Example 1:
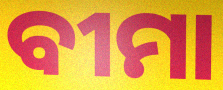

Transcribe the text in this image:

ବୀମା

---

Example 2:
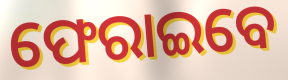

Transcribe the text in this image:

ଫେରାଇବେ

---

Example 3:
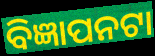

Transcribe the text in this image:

ବିଜ୍ଞାପନଟା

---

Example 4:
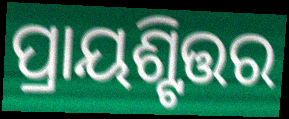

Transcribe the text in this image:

ପ୍ରାୟଶ୍ଟିତ୍ତର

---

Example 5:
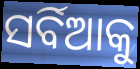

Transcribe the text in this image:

ସର୍ବିଆକୁ